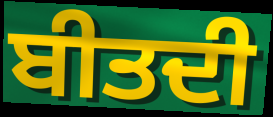
ਬੀਤਦੀ